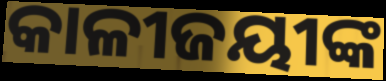
କାଳୀଜୟୀଙ୍କ